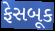
ફેસબૂક